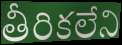
తీరికలేని